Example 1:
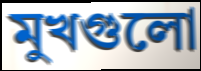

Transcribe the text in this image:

মুখগুলো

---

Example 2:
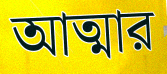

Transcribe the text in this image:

আত্মার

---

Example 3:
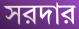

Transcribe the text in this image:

সরদার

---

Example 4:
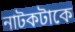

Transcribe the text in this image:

নাটকটাকে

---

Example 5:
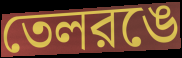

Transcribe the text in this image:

তেলরঙে